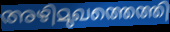
അഴിമുഖത്തെത്തി